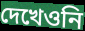
দেখেওনি